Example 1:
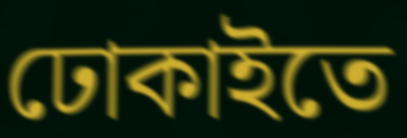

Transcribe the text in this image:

ঢোকাইতে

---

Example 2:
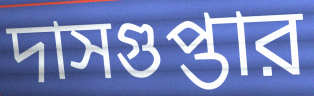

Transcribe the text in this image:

দাসগুপ্তার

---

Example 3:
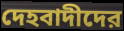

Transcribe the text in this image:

দেহবাদীদের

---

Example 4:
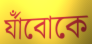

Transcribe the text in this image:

র্যাঁবোকে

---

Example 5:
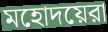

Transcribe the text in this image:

মহোদয়েরা